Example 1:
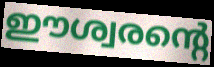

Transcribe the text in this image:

ഈശ്വരന്റെ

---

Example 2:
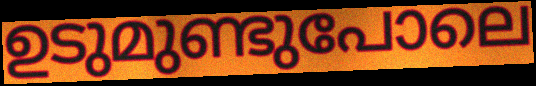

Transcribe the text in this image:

ഉടുമുണ്ടുപോലെ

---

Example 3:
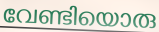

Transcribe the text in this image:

വേണ്ടിയൊരു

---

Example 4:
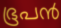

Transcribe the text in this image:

ഭൂപൻ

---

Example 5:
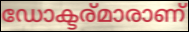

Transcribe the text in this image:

ഡോക്ടര്മാരാണ്